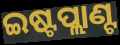
ଇଷ୍ଟପ୍ଲାଣ୍ଟ